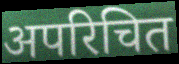
अपरिचित